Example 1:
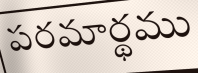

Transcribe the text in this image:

పరమార్థము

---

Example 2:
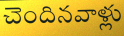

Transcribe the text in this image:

చెందినవాళ్లు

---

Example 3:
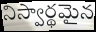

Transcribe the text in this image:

నిస్వార్థమైన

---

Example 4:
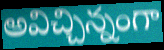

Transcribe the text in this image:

అవిచ్చిన్నంగా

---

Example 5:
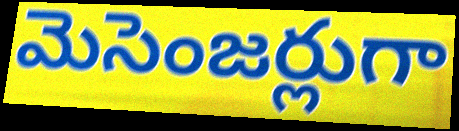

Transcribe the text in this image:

మెసెంజర్లుగా